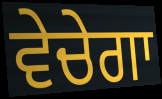
ਵੇਚੇਗਾ